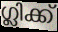
ഗ്ലിക്ക്